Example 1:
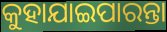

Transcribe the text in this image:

କୁହାଯାଇପାରନ୍ତା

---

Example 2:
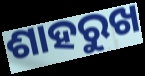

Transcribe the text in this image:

ଶାହରୁଖ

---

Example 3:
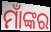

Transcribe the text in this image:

ମାଁଙ୍କର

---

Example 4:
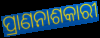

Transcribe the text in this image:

ପ୍ରାଣନାଶକାରୀ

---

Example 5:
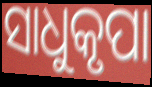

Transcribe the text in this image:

ସାଧୁକୃପା